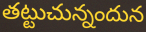
తట్టుచున్నందున